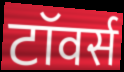
टॉवर्स